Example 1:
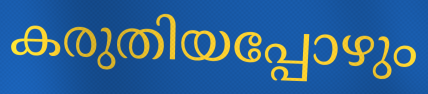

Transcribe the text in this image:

കരുതിയപ്പോഴും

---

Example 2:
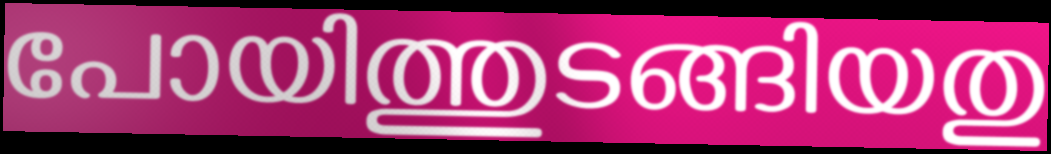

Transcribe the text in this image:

പോയിത്തുടങ്ങിയതു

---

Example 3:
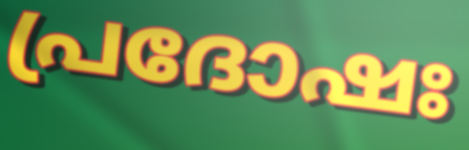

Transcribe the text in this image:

പ്രദോഷഃ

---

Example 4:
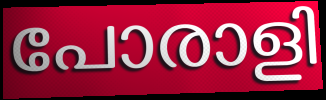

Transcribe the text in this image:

പോരാളി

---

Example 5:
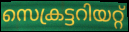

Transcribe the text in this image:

സെക്രട്ടറിയറ്റ്